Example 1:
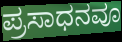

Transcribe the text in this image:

ಪ್ರಸಾಧನವೂ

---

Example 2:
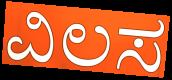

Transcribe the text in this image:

ವಿಲಸ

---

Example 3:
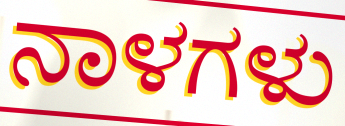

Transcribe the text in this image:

ನಾಳಗಳು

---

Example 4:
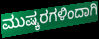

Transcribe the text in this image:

ಮುಷ್ಕರಗಳಿಂದಾಗಿ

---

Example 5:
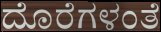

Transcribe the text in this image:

ದೊರೆಗಳಂತೆ